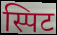
स्पिट